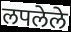
लपलेले